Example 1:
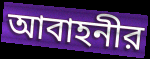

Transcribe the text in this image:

আবাহনীর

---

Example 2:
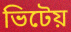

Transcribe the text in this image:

ভিটেয়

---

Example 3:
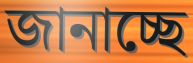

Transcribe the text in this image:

জানাচ্ছে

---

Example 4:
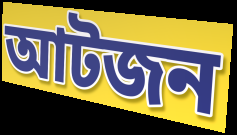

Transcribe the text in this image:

আটজন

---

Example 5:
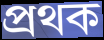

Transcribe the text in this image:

প্রথক